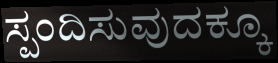
ಸ್ಪಂದಿಸುವುದಕ್ಕೂ